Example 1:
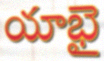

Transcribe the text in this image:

యాభై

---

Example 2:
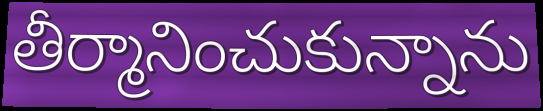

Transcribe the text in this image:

తీర్మానించుకున్నాను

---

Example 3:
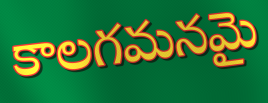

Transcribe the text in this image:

కాలగమనమై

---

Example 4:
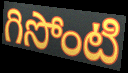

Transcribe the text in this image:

గిసోంటి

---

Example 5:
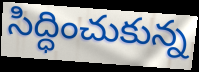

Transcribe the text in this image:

సిద్ధించుకున్న